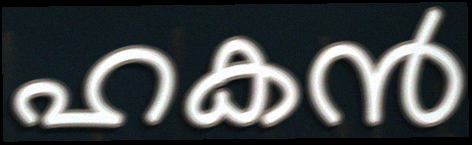
ഹകൻ